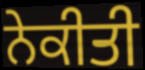
ਨੇਕੀਤੀ